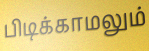
பிடிக்காமலும்